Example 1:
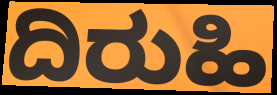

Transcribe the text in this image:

ದಿರುಹಿ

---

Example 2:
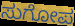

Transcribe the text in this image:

ಸುಗೋಪ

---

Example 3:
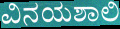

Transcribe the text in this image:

ವಿನಯಶಾಲಿ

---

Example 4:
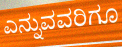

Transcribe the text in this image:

ಎನ್ನುವವರಿಗೂ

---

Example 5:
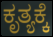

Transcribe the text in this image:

ಕೃತ್ಯಕ್ಕೆ